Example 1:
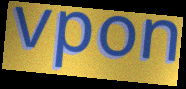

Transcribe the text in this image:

vpon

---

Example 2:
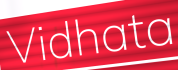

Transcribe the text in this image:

Vidhata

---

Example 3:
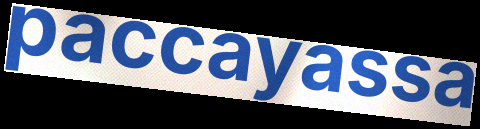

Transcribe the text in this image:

paccayassa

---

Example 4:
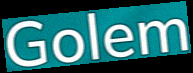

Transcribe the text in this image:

Golem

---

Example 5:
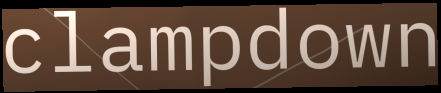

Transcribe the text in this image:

clampdown